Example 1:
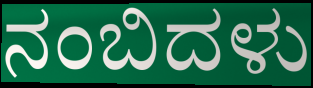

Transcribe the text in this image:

ನಂಬಿದಳು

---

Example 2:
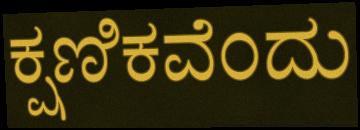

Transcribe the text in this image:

ಕ್ಷಣಿಕವೆಂದು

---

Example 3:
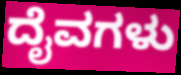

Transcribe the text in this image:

ದೈವಗಳು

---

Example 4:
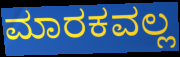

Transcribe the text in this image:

ಮಾರಕವಲ್ಲ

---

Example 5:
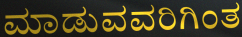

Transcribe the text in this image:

ಮಾಡುವವರಿಗಿಂತ